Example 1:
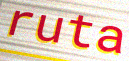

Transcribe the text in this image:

ruta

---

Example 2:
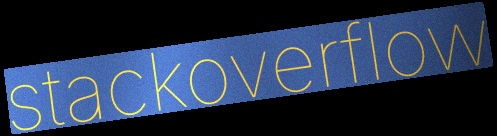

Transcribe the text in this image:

stackoverflow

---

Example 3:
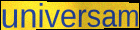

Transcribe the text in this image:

universam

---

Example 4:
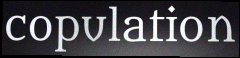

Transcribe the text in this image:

copulation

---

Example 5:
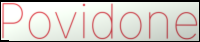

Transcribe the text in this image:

Povidone